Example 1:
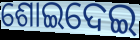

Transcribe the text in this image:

ଶୋଇଦେଇ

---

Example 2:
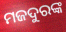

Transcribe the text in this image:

ମଜଦୁରଙ୍କ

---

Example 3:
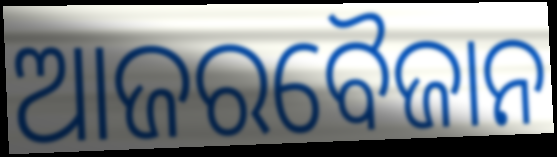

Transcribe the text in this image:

ଆଜରବୈଜାନ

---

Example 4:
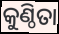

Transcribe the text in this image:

କୁଣ୍ଠିତା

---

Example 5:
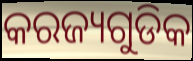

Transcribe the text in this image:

କରଜ୍ୟଗୁଡିକ